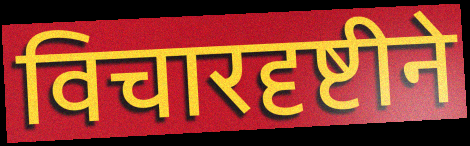
विचारदृष्टीने